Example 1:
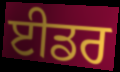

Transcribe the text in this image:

ਈਡਰ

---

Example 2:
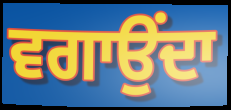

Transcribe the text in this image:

ਵਗਾਉਂਦਾ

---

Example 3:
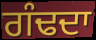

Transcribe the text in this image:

ਗੰਢਦਾ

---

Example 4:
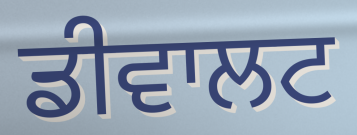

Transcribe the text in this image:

ਡੀਵਾਲਟ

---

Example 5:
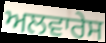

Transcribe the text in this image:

ਅਲਵਾਰੇਸ